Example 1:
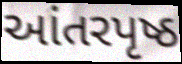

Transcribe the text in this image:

આંતરપૃષ્ઠ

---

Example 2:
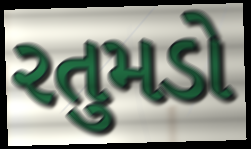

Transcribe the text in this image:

રતુમડો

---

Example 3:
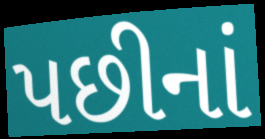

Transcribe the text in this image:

પછીનાં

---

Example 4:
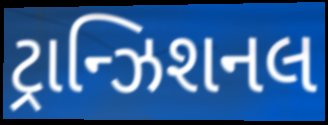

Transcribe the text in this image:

ટ્રાન્ઝિશનલ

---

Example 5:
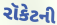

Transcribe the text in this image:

રૉકેટની